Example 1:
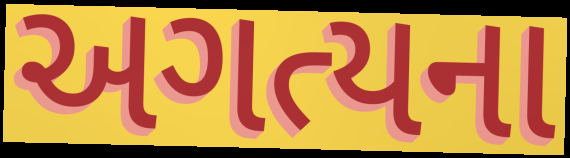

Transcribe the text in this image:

અગત્યના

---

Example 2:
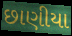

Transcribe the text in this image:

છાણીયા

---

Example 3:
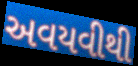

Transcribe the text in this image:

અવયવીથી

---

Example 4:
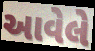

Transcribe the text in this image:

આવેલે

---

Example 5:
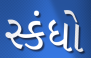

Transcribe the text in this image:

સ્કંધો